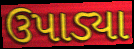
ઉપાડ્યા